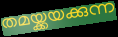
തമയ്ക്കയക്കുന്ന